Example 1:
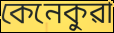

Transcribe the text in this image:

কেনেকুৱা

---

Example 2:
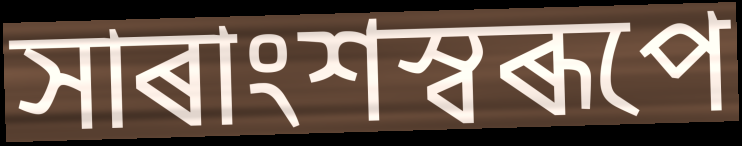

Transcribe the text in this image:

সাৰাংশস্বৰূপে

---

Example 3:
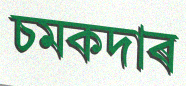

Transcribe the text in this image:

চমকদাৰ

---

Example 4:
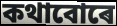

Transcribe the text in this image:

কথাবোৰে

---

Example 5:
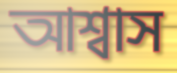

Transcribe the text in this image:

আশ্বাস